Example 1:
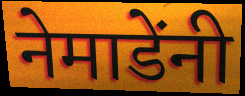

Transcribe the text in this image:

नेमाडेंनी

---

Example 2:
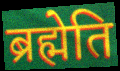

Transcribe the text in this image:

ब्रह्मेति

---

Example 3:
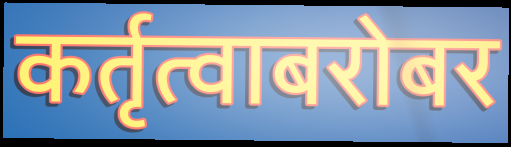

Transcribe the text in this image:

कर्तृत्वाबरोबर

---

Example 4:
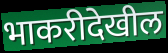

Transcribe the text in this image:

भाकरीदेखील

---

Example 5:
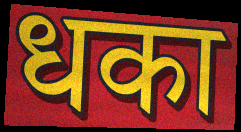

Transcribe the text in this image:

धका